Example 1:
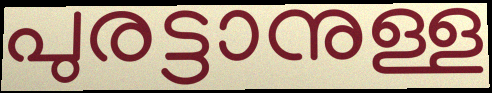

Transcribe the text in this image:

പുരട്ടാനുള്ള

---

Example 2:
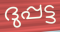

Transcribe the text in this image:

ദുപ്പട്ട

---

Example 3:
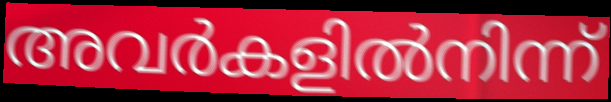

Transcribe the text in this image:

അവർകളിൽനിന്ന്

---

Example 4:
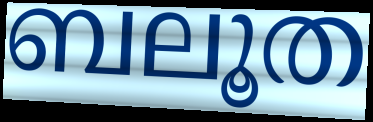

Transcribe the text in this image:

ബലൂത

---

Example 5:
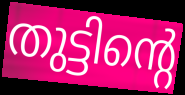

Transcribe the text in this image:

തുട്ടിന്റെ